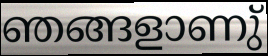
ഞങ്ങളാണു്